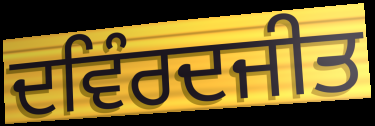
ਦਵਿੰਰਦਜੀਤ